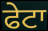
ਫੇਟਾ